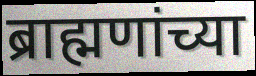
ब्राह्मणांच्या